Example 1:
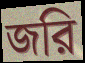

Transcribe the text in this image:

জরি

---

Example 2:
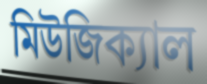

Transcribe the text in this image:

মিউজিক্যাল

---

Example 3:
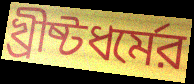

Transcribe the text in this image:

খ্রীষ্টধর্মের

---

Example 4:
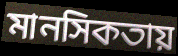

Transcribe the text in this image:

মানসিকতায়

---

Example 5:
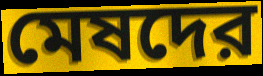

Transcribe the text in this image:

মেষদের